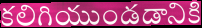
కలిగియుండడానికి